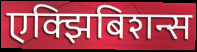
एक्झिबिशन्स